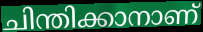
ചിന്തിക്കാനാണ്